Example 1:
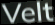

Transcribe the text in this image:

Velt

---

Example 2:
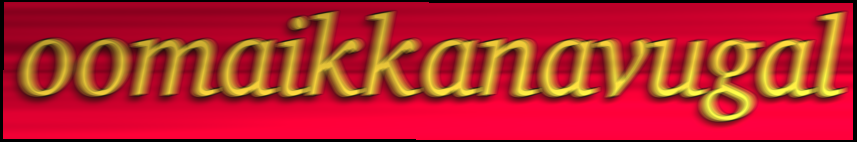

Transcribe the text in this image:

oomaikkanavugal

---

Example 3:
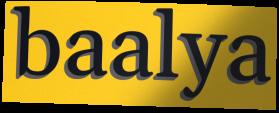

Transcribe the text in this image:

baalya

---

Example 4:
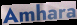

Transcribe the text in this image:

Amhara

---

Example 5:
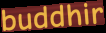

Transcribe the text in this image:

buddhir